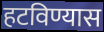
हटविण्यास